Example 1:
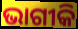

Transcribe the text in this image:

ଭାଗୀକି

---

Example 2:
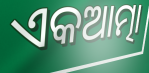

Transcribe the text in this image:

ଏକଆତ୍ମା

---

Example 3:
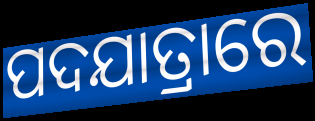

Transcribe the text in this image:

ପଦଯାତ୍ରାରେ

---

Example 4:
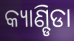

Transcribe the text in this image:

କ୍ୟାଣ୍ଡିଡା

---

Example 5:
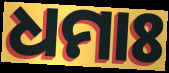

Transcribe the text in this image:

ଧମାଃ